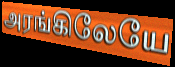
அரங்கிலேயே